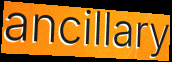
ancillary